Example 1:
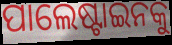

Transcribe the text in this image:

ପାଲେଷ୍ଟାଇନକୁ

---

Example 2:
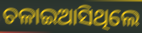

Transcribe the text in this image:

ଚଳାଇଆସିଥିଲେ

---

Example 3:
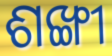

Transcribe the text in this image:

ଶଙ୍ଖୀ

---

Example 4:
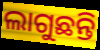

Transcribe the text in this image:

ଲାଗୁଛନ୍ତି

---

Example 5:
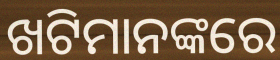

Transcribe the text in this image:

ଖଟିମାନଙ୍କରେ